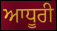
ਆਧੂਰੀ